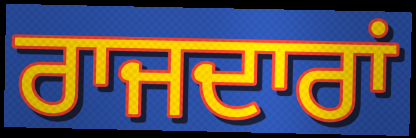
ਰਾਜਦਾਰਾਂ